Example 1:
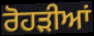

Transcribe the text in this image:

ਰੋਹੜੀਆਂ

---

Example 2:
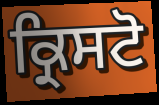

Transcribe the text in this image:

ਕ੍ਰਿਸਟੋ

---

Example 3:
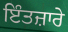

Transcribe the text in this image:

ਇੰਤਜ਼ਾਰੇ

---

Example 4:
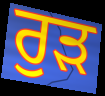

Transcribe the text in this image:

ਰੁੜ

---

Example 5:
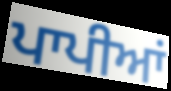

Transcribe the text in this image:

ਪਾਪੀਆਂ